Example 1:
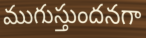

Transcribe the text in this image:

ముగుస్తుందనగా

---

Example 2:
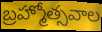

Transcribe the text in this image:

బ్రహ్మోత్సవాల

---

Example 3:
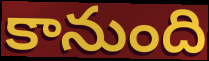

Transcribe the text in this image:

కానుంది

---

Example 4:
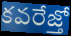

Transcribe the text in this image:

కవరేజ్తో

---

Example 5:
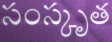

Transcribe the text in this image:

సంస్కృత